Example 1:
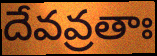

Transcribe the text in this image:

దేవవ్రతాః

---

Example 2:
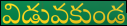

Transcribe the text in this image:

విడువకుండ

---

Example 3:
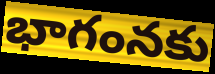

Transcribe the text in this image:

భాగంనకు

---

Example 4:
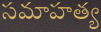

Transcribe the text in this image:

సమాహత్య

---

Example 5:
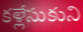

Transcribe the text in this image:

కళ్లేసుకుని